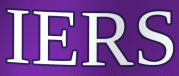
IERS